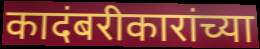
कादंबरीकारांच्या